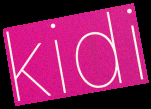
kidi